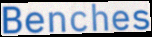
Benches